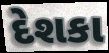
દેશકા